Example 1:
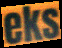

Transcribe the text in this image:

eks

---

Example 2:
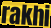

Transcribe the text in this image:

rakhi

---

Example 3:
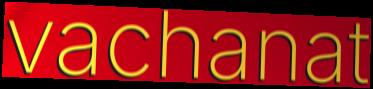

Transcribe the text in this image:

vachanat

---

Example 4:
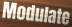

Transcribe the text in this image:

Modulate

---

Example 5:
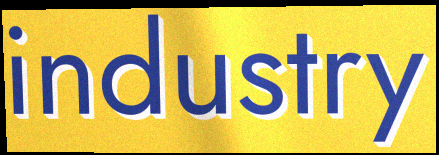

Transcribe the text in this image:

industry